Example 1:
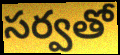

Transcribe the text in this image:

సర్వతో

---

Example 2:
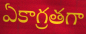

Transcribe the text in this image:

ఏకాగ్రతగా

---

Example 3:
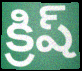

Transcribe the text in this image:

క్రిష్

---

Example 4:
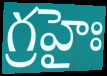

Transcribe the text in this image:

గ్రహైః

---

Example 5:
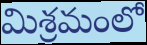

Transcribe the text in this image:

మిశ్రమంలో